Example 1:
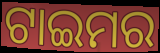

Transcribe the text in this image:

ଟାଇମର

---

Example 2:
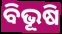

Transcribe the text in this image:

ବିଭୂଷି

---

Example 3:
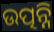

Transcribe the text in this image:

ଉତ୍ପନ୍ନି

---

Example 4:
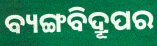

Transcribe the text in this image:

ବ୍ୟଙ୍ଗବିଦ୍ରୂପର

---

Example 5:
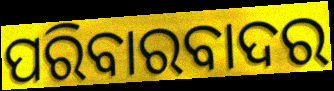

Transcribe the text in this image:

ପରିବାରବାଦର